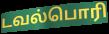
டவல்பொரி